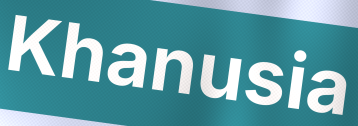
Khanusia